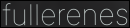
fullerenes